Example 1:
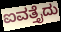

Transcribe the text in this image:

ಐವತ್ತೈದು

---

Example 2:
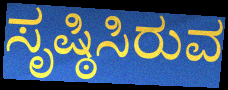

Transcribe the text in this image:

ಸೃಷ್ಠಿಸಿರುವ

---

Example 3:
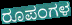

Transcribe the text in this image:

ರೂಪಂಗಳ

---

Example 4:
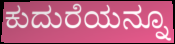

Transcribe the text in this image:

ಕುದುರೆಯನ್ನೂ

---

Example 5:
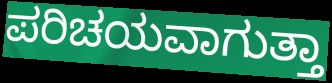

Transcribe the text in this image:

ಪರಿಚಯವಾಗುತ್ತಾ